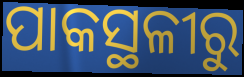
ପାକସ୍ଥଳୀରୁ